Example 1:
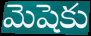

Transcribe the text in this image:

మెషెకు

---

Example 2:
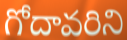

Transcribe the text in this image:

గోదావరిని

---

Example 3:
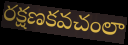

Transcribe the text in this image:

రక్షణకవచంలా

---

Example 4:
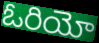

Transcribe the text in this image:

ఓరియో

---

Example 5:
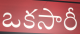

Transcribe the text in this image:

ఒకసారీ